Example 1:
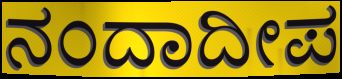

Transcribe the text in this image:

ನಂದಾದೀಪ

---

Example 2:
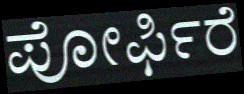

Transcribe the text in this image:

ಪೋರ್ಫಿರೆ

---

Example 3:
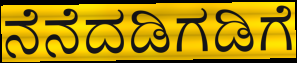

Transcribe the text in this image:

ನೆನೆದಡಿಗಡಿಗೆ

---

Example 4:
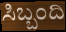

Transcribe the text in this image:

ಸಿಬ್ಬಂದಿ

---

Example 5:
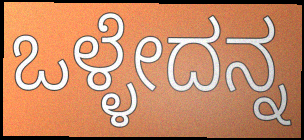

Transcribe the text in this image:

ಒಳ್ಳೇದನ್ನ